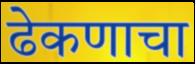
ढेकणाचा